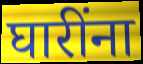
घारींना